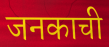
जनकाची